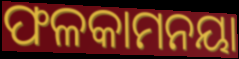
ଫଳକାମନୟା